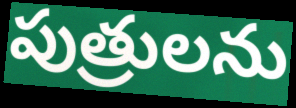
పుత్రులను